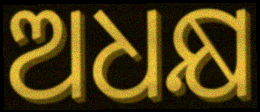
ଅଧକ୍ଷ